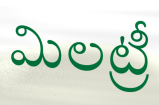
మిలట్రీ